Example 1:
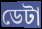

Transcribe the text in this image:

ডেটা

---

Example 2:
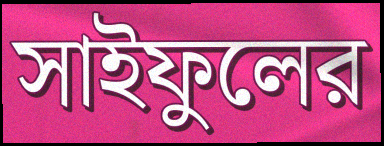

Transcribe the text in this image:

সাইফুলের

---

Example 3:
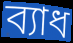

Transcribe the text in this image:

ব্যাধ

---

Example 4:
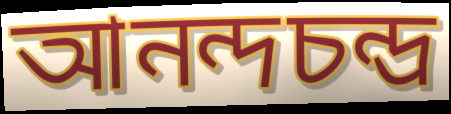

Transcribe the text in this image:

আনন্দচন্দ্র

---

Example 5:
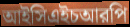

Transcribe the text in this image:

আইসিএইচআরপি